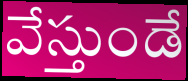
వేస్తుండే